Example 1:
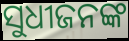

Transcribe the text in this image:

ସୁଧୀଜନଙ୍କ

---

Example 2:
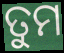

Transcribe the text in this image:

ତୁମ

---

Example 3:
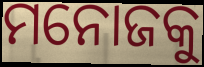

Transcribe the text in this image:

ମନୋଜକୁ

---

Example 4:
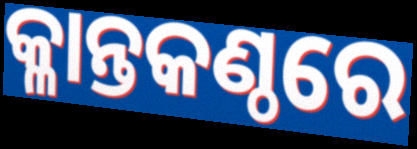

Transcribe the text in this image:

କ୍ଳାନ୍ତକଣ୍ଠରେ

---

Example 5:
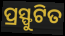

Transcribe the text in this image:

ପ୍ରସ୍ଫୁଟିତ